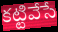
కట్టివేసే